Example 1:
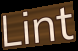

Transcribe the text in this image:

Lint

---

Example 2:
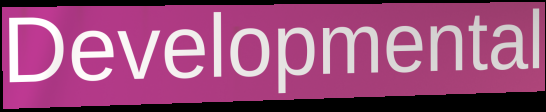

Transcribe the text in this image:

Developmental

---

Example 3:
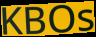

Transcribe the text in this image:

KBOs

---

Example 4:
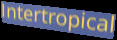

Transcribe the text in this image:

Intertropical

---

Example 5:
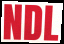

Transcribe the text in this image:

NDL